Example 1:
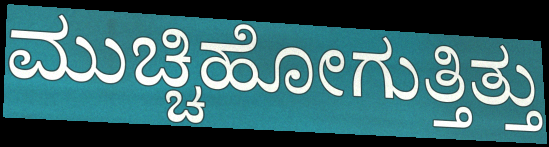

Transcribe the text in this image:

ಮುಚ್ಚಿಹೋಗುತ್ತಿತ್ತು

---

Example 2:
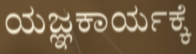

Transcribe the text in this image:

ಯಜ್ಞಕಾರ್ಯಕ್ಕೆ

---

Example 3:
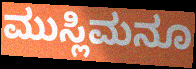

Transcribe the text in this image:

ಮುಸ್ಲಿಮನೂ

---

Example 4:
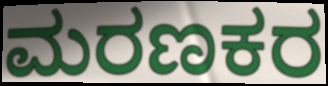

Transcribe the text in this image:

ಮರಣಕರ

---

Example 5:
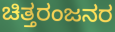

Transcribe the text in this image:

ಚಿತ್ತರಂಜನರ